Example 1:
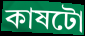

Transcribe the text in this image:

কাষটো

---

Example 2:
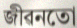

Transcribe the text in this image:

জীৱনতো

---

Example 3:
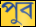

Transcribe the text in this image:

পুব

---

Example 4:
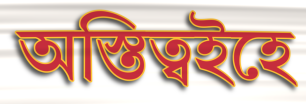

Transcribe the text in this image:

অস্তিত্বইহে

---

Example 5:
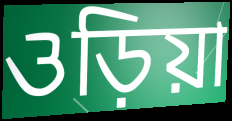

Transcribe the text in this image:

ওড়িয়া